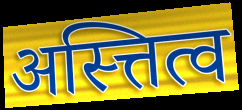
अस्त्तित्व